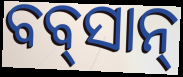
ବବ୍‌ସାନ୍